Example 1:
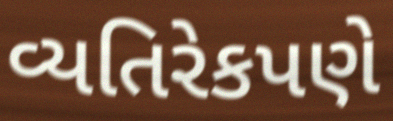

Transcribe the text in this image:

વ્યતિરેકપણે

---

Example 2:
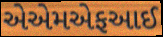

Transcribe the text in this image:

એએમએફઆઈ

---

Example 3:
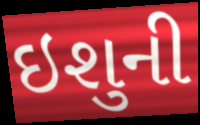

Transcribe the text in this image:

ઇશુની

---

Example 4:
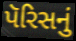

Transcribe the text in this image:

પૅરિસનું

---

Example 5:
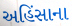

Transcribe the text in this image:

અહિંસાના